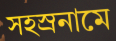
সহস্ৰনামে